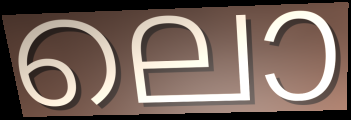
ലൊ